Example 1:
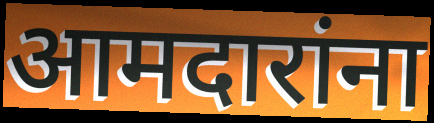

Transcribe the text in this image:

आमदारांना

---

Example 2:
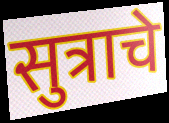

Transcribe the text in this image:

सुत्राचे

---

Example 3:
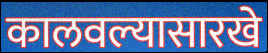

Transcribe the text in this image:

कालवल्यासारखे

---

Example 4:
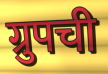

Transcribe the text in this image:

ग्रुपची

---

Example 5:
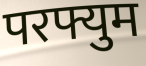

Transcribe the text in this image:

परफ्युम